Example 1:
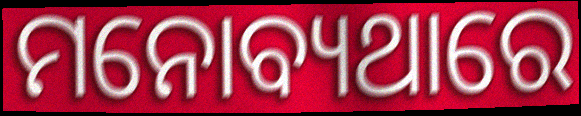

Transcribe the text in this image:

ମନୋବ୍ୟଥାରେ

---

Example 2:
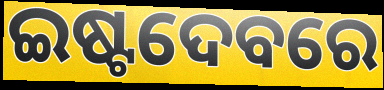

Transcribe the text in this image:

ଇଷ୍ଟଦେବରେ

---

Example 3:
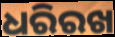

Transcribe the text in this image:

ଧରିରଖ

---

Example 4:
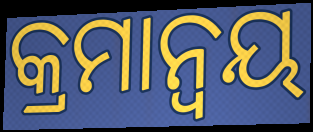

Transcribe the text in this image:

କ୍ରମାନ୍ୱୟ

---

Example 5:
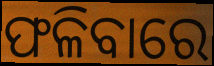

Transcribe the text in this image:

ଫଳିବାରେ